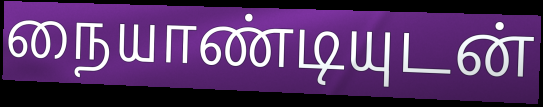
நையாண்டியுடன்